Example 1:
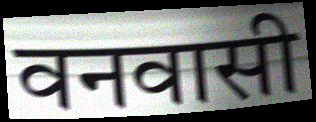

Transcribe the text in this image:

वनवासी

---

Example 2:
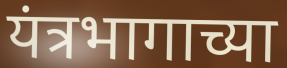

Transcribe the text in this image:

यंत्रभागाच्या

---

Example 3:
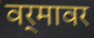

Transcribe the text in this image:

वर्मावर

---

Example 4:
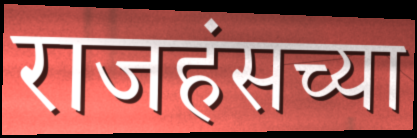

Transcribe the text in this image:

राजहंसच्या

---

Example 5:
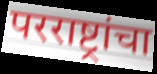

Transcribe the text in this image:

परराष्ट्रांचा